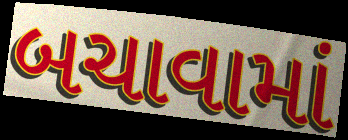
બચાવામાં